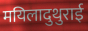
मयिलादुथुराई